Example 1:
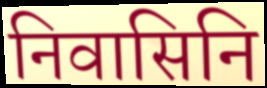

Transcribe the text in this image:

निवासिनि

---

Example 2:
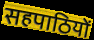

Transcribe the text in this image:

सहपाठियों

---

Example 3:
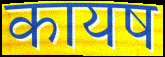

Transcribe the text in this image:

कायष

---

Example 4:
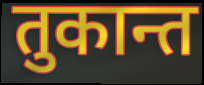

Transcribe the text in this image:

तुकान्त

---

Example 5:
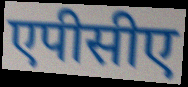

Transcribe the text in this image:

एपीसीए